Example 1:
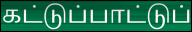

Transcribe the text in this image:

கட்டுப்பாட்டுப்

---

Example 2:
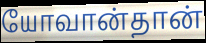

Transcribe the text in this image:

யோவான்தான்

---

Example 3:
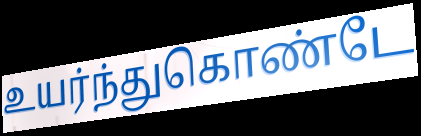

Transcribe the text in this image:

உயர்ந்துகொண்டே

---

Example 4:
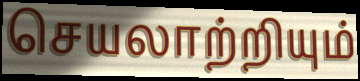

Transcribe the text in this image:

செயலாற்றியும்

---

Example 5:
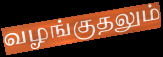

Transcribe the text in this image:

வழங்குதலும்